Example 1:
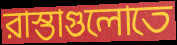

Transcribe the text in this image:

রাস্তাগুলোতে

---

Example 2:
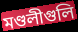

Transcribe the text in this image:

মণ্ডলীগুলি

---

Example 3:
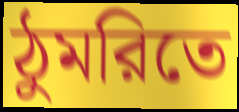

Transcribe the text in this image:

ঠুমরিতে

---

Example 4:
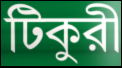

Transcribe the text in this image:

টিকুরী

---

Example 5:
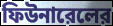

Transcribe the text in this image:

ফিউনারেলের